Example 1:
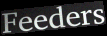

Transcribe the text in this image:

Feeders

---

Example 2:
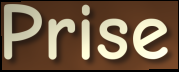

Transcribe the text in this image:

Prise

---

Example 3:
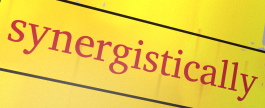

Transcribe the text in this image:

synergistically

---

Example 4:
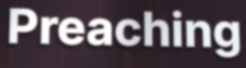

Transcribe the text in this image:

Preaching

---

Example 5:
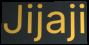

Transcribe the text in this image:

Jijaji